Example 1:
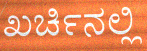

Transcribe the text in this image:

ಖರ್ಚಿನಲ್ಲಿ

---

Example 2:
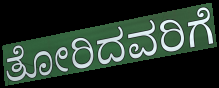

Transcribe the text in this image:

ತೋರಿದವರಿಗೆ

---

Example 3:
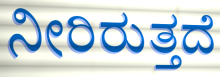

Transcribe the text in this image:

ನೀರಿರುತ್ತದೆ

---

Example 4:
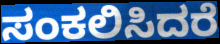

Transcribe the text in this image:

ಸಂಕಲಿಸಿದರೆ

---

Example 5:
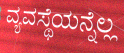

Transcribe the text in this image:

ವ್ಯವಸ್ಥೆಯನ್ನೆಲ್ಲ